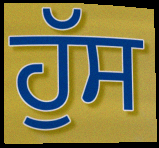
ਹੁੱਸ